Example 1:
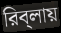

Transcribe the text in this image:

রিব্‌লায়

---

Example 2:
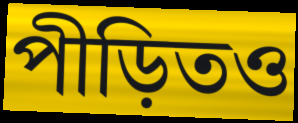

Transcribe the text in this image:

পীড়িতও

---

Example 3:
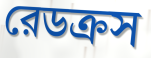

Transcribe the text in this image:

রেডক্রস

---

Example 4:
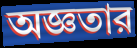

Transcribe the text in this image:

অজ্ঞতার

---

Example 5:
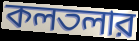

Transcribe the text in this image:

কলতলার